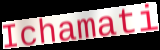
Ichamati